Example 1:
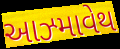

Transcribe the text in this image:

આઝ્માવેથ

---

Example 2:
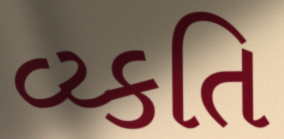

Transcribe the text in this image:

વ્ય્કતિ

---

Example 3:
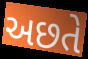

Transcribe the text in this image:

અછતે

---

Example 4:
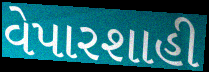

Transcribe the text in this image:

વેપારશાહી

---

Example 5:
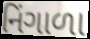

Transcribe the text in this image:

નિંગાળા